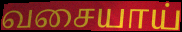
வசையாய்